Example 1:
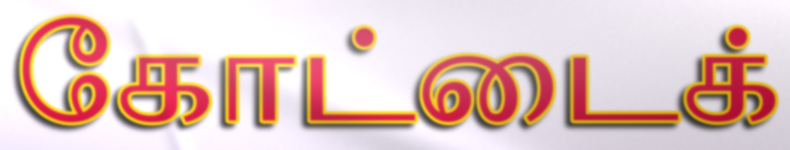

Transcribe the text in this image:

கோட்டைக்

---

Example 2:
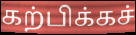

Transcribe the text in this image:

கற்பிக்கச்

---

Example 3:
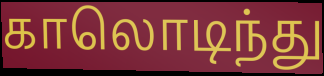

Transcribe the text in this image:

காலொடிந்து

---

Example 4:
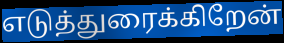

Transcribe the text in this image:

எடுத்துரைக்கிறேன்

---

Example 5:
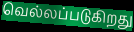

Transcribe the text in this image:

வெல்லப்படுகிறது